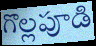
గొల్లపూడి